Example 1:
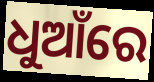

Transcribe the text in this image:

ଧୁଆଁରେ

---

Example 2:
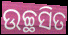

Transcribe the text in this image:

ଉଚ୍ଛସିତ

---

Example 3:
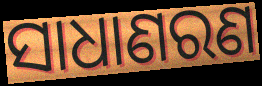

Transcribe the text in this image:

ସାଧାଣରଣ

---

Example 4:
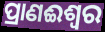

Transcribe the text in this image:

ପ୍ରାଣଈଶ୍ୱର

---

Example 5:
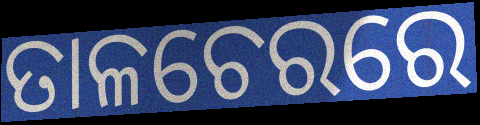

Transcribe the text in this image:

ତାଳଚେରରେ